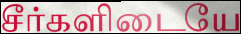
சீர்களிடையே